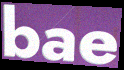
bae